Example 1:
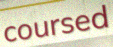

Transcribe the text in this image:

coursed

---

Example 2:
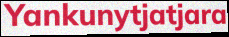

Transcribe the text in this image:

Yankunytjatjara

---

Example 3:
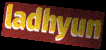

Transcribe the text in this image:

ladhyun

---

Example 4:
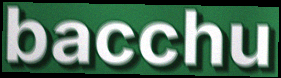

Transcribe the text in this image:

bacchu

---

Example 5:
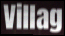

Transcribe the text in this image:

Villag